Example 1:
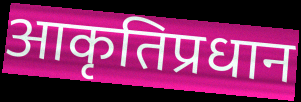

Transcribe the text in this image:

आकृतिप्रधान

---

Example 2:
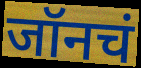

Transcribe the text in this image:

जॉनचं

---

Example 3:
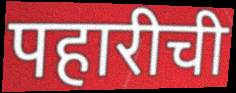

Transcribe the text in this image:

पहारीची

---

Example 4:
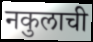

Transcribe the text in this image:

नकुलाची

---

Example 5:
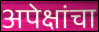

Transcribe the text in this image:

अपेक्षांचा